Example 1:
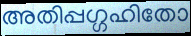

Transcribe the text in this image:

അതിപ്പഗ്ഗഹിതോ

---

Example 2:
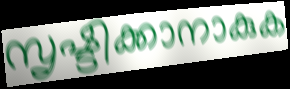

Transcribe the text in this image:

സൃഷ്ടിക്കാനാകുക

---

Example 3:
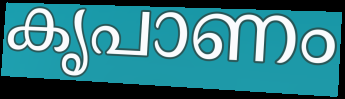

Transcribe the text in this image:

കൃപാണം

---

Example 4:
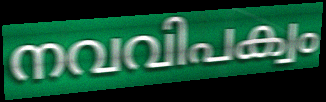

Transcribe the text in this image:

നവവിപക്വം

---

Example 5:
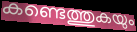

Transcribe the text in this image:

കണ്ടെത്തുകയും